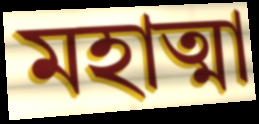
মহাত্মা